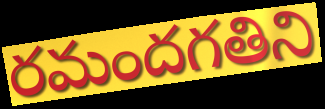
రమందగతిని